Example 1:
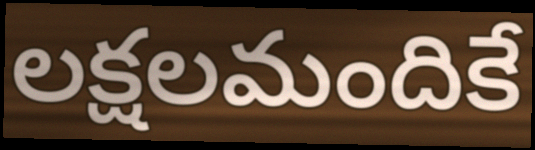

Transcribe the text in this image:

లక్షలమందికే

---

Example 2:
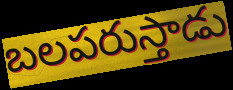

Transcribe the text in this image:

బలపరుస్తాడు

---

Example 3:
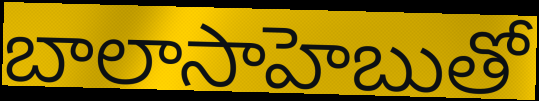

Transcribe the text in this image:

బాలాసాహెబుతో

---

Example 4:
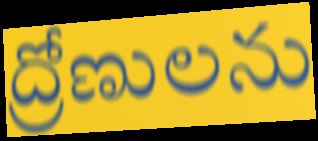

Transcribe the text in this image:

ద్రోణులను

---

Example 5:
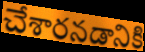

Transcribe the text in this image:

చేశారనడానికి